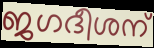
ജഗദീശന്